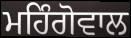
ਮਹਿੰਗੋਵਾਲ